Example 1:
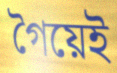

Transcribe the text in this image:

গৈয়েই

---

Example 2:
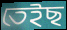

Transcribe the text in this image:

তেইছ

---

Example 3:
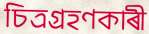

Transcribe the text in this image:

চিত্ৰগ্ৰহণকাৰী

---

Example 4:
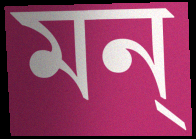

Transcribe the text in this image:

মন্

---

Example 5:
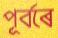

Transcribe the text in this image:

পূৰ্বৰে